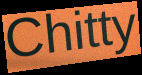
Chitty